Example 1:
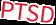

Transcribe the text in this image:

PTSD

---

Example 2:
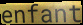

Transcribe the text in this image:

enfant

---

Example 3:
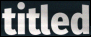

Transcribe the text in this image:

titled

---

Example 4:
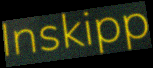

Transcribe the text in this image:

Inskipp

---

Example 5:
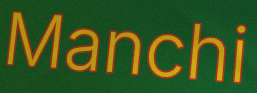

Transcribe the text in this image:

Manchi